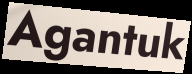
Agantuk